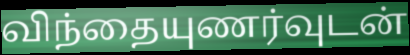
விந்தையுணர்வுடன்